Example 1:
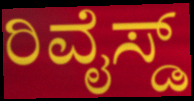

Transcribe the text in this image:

ರಿವೈಸ್ಡ್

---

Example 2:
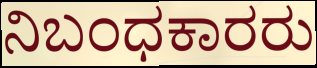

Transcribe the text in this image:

ನಿಬಂಧಕಾರರು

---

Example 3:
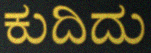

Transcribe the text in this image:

ಕುದಿದು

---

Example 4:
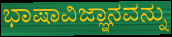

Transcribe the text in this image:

ಭಾಷಾವಿಜ್ಞಾನವನ್ನು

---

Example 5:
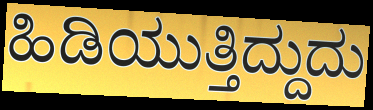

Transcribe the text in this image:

ಹಿಡಿಯುತ್ತಿದ್ದುದು